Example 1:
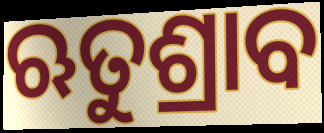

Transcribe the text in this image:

ଋତୁଶ୍ରାବ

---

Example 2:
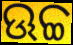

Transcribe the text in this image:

ଊଚ୍ଚ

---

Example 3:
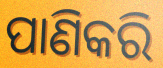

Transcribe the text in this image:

ପାଣିକରି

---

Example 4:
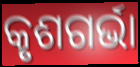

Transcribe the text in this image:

କୃଶଗର୍ଭା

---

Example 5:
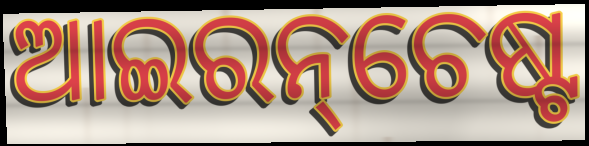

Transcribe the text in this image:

ଆଇରନ୍‌ଚେଷ୍ଟ